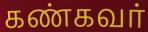
கண்கவர்